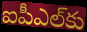
ఐపీఎల్‌కు